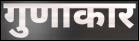
गुणाकार